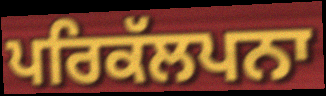
ਪਰਿਕੱਲਪਨਾ